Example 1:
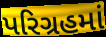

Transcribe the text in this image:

પરિગ્રહમાં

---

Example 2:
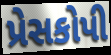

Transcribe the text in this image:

પ્રેસકોપી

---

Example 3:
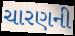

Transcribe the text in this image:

ચારણની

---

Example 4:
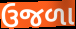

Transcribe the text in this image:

ઉજળા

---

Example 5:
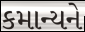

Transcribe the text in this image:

કમાન્યને